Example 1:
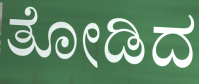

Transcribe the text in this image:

ತೋಡಿದ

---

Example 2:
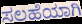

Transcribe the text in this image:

ಸಲಹೆಯಾಗಿ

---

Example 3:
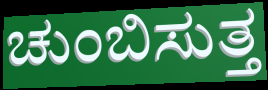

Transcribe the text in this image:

ಚುಂಬಿಸುತ್ತ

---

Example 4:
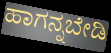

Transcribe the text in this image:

ಹಾಗನ್ನಬೇಡಿ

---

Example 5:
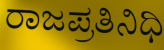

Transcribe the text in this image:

ರಾಜಪ್ರತಿನಿಧಿ